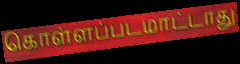
கொள்ளப்படமாட்டாது